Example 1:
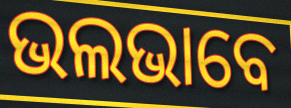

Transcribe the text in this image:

ଭଲଭାବେ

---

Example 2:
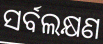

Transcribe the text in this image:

ସର୍ବଲକ୍ଷଣ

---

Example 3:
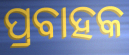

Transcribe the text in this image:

ପ୍ରବାହକ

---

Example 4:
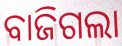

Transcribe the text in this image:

ବାଜିଗଲା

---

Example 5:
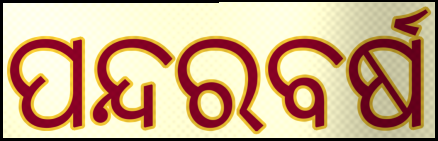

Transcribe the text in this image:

ପନ୍ଦରବର୍ଷ